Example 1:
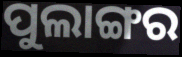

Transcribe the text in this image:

ପୁଲାଙ୍ଗର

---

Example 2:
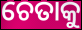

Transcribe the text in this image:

ଚେତାକୁ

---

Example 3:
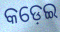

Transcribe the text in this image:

କଡ଼େଇ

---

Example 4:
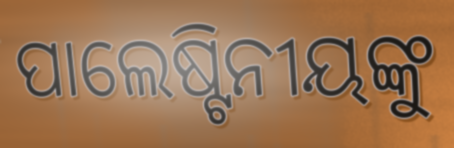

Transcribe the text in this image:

ପାଲେଷ୍ଟିନୀୟଙ୍କୁ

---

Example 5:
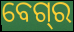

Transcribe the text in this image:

ବେଗ୍‌ର